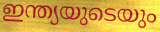
ഇന്ത്യയുടെയും